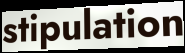
stipulation